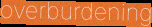
overburdening